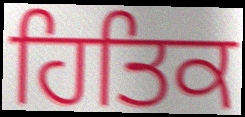
ਹਿਤਿਕ